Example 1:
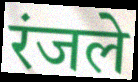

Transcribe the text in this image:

रंजले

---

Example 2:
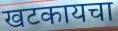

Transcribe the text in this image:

खटकायचा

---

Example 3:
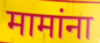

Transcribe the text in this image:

मामांना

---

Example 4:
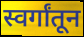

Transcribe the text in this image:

स्वर्गांतून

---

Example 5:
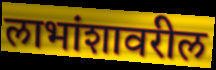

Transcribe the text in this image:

लाभांशावरील